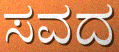
ಸವದ